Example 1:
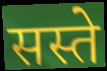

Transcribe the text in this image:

सस्ते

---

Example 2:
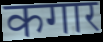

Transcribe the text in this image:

कगार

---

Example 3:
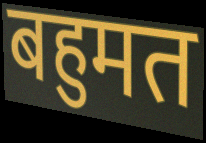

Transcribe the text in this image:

बहुमत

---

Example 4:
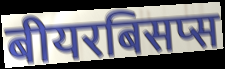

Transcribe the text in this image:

बीयरबिसप्स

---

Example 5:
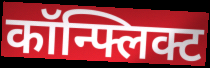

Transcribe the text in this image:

कॉन्फ्लिक्ट